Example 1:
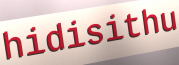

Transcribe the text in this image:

hidisithu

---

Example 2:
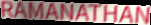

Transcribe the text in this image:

RAMANATHAN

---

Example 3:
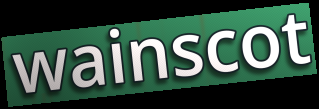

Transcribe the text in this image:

wainscot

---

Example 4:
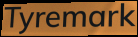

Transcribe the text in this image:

Tyremark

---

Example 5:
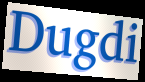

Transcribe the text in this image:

Dugdi